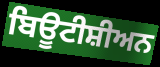
ਬਿਊਟੀਸ਼ੀਅਨ